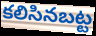
కలిసినబట్ట